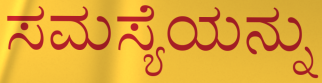
ಸಮಸ್ಯೆಯನ್ನು